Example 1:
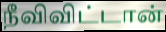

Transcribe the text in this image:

நீவிவிட்டான்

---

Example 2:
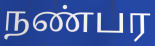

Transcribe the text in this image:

நண்பர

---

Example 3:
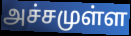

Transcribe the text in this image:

அச்சமுள்ள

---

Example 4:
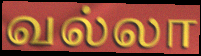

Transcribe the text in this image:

வல்லா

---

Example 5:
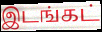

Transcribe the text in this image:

இடங்கட்